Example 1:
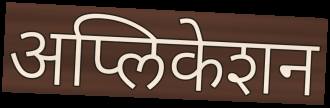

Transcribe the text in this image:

अप्लिकेशन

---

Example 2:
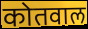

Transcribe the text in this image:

कोतवाल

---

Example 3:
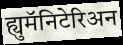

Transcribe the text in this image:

ह्युमॅनिटेरिअन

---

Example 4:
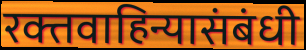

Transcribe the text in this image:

रक्तवाहिन्यासंबंधी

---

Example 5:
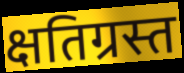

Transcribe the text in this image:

क्षतिग्रस्त